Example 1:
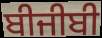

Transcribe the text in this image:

ਬੀਜੀਬੀ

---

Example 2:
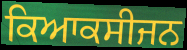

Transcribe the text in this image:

ਕਿਆਕਸੀਜਨ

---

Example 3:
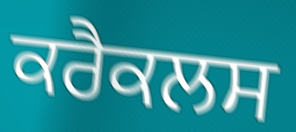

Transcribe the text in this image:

ਕਰੈਕਲਸ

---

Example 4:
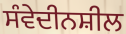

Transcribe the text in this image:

ਸੰਵੇਦੀਨਸ਼ੀਲ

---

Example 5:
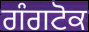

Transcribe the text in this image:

ਗੰਗਟੋਕ